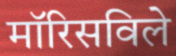
मॉरिसविले